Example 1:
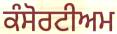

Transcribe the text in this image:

ਕੰਸੋਰਟੀਅਮ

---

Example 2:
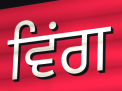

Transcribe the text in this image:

ਵਿਂਗ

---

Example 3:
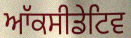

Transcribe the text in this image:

ਆੱਕਸੀਡੇਟਿਵ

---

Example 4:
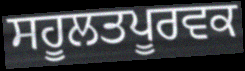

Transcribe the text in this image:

ਸਹੂਲਤਪੂਰਵਕ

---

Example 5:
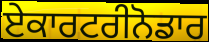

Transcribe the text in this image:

ਏਕਾਰਟਰੀਨੋਡਾਰ